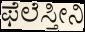
ಫೆಲೆಸ್ತೀನಿ